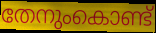
തേനുംകൊണ്ട്